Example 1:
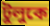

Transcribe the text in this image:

টুলুকে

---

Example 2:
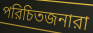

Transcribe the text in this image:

পরিচিতজনারা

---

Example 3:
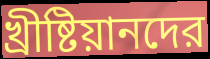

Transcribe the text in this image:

খ্রীষ্টিয়ানদের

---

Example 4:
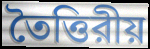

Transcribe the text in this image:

তৈত্তিরীয়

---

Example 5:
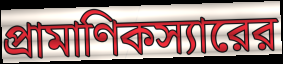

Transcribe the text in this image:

প্রামাণিকস্যারের